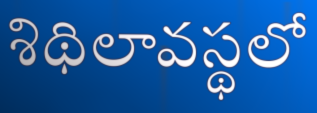
శిథిలావస్థలో